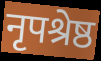
नृपश्रेष्ठ